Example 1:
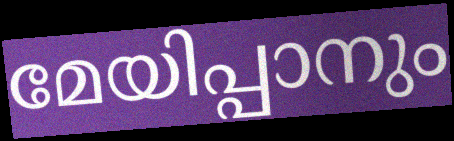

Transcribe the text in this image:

മേയിപ്പാനും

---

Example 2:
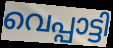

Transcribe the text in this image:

വെപ്പാട്ടി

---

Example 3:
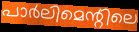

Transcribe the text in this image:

പാർലിമെന്റിലെ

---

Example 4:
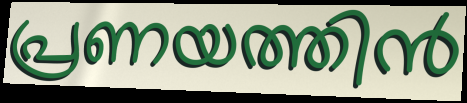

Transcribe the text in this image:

പ്രണയത്തിൻ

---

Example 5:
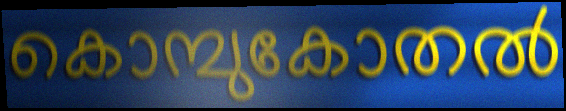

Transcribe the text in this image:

കൊമ്പുകോതൽ